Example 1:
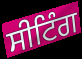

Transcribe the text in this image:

ਸੀਟਿੰਗ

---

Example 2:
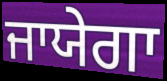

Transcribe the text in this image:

ਜਾਯੇਗਾ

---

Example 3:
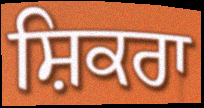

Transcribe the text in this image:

ਸ਼ਿਕਰਾ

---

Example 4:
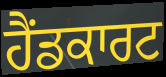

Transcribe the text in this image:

ਹੈਂਡਕਾਰਟ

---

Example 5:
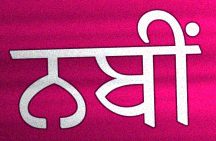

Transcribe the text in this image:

ਨਬੀਂ